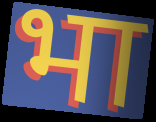
भा